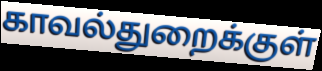
காவல்துறைக்குள்